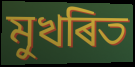
মুখৰিত